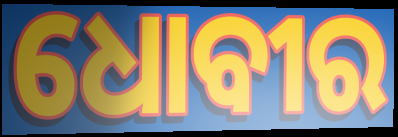
ଧୋବୀର